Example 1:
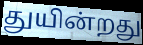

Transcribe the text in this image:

துயின்றது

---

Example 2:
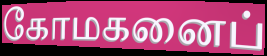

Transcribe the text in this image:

கோமகனைப்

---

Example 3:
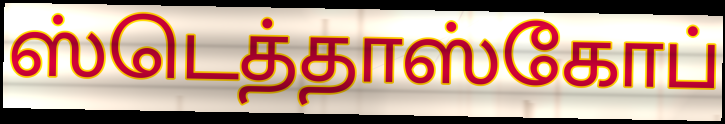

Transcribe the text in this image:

ஸ்டெத்தாஸ்கோப்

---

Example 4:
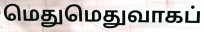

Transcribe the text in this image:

மெதுமெதுவாகப்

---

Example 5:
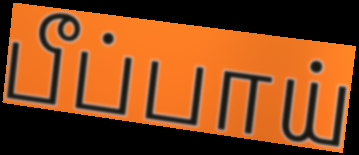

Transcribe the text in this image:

பீப்பாய்